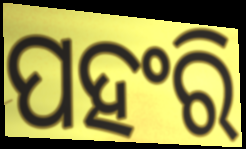
ପହଂରି